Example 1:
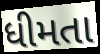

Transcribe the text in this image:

ધીમતા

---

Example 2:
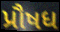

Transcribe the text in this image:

પ્રૌષધ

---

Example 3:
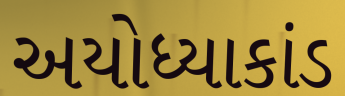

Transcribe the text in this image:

અયોધ્યાકાંડ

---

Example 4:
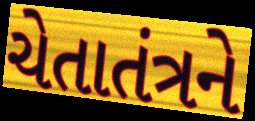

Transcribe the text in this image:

ચેતાતંત્રને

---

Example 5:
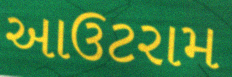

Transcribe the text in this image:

આઉટરામ